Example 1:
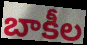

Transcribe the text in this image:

బాకీల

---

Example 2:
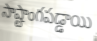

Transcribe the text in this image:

సాష్టాంగపడ్డాయి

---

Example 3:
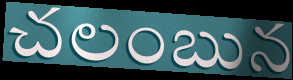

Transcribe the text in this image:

చలంబున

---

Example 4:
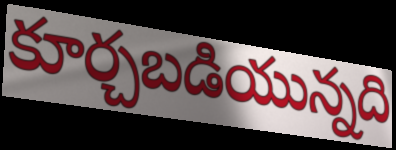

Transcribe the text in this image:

కూర్చబడియున్నది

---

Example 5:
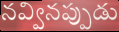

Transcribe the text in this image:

నవ్వినప్పుడు